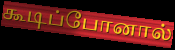
கூடிப்போனால்